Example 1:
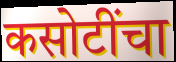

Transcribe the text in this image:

कसोटींचा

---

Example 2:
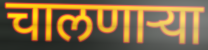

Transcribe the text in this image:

चालणाऱ्या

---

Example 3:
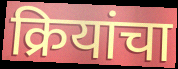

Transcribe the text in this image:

क्रियांचा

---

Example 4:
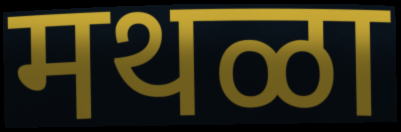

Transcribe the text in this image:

मथळा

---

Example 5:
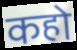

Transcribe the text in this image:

कहो